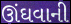
ઊંઘવાની